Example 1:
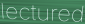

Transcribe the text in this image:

lectured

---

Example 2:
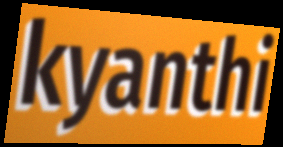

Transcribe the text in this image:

kyanthi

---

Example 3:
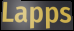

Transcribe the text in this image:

Lapps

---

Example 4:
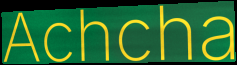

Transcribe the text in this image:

Achcha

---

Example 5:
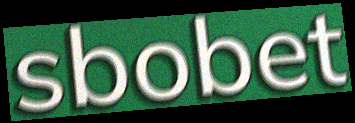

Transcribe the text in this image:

sbobet